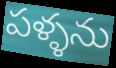
పళ్ళను